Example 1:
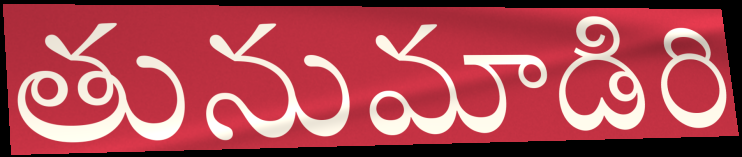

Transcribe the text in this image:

తునుమాడిరి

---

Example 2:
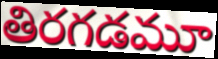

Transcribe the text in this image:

తిరగడమూ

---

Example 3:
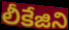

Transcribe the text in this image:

లీకేజిని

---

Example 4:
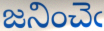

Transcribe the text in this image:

జనించెఁ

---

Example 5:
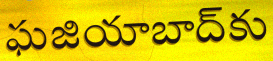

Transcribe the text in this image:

ఘజియాబాద్‌కు